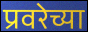
प्रवरेच्या